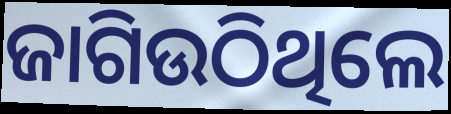
ଜାଗିଉଠିଥିଲେ